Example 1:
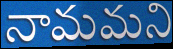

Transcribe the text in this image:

నామమని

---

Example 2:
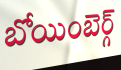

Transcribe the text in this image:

బోయింబెర్గ్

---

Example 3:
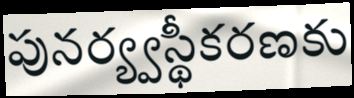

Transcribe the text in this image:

పునర్య్వస్థీకరణకు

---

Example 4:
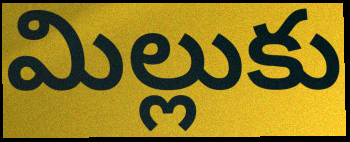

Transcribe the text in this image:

మిల్లుకు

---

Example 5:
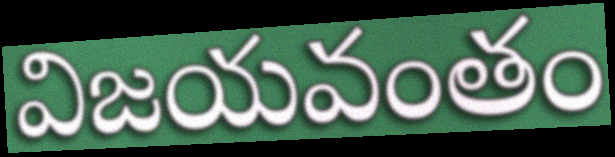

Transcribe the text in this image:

విజయవంతం